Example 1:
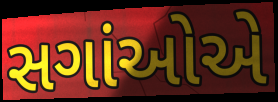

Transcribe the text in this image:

સગાંઓએ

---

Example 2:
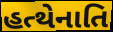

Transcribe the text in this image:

હત્થેનાતિ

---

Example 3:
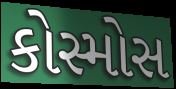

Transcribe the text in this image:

કોસ્મોસ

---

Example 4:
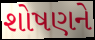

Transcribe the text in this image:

શોષણને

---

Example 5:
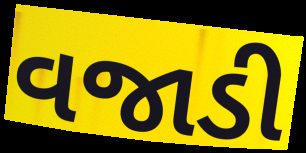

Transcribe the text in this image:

વજાડી